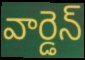
వార్డెన్